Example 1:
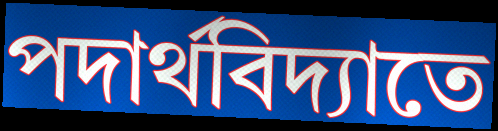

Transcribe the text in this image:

পদার্থবিদ্যাতে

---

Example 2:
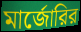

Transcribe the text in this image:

মার্জোরির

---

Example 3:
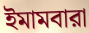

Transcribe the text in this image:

ইমামবারা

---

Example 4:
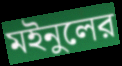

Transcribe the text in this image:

মইনুলের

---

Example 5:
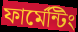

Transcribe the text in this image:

ফার্মেন্টিং